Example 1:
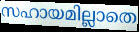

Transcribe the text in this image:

സഹായമില്ലാതെ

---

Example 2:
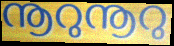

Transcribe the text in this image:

നൂറുനൂറു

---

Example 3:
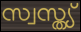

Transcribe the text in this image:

സ്വസ്ത്യ്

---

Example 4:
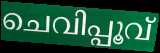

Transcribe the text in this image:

ചെവിപ്പൂവ്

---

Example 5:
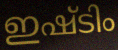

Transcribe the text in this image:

ഇഷ്ടിം